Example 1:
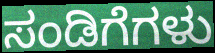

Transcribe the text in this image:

ಸಂಡಿಗೆಗಳು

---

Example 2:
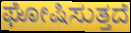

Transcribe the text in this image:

ಘೋಷಿಸುತ್ತದೆ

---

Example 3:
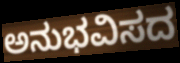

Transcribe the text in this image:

ಅನುಭವಿಸದ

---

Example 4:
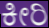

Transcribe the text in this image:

ಕೀರಿ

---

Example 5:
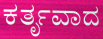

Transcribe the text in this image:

ಕರ್ತೃವಾದ